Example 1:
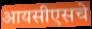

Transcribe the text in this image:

आयसीएसचे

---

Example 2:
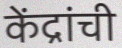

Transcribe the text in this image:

केंद्रांची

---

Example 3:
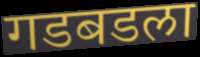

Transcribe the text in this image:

गडबडला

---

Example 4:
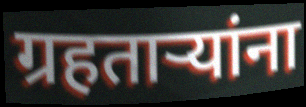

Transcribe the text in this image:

ग्रहताऱ्यांना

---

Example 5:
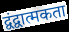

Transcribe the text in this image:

द्वंद्वात्मकता